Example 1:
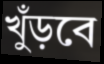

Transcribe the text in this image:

খুঁড়বে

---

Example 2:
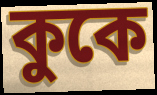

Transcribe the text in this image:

কুকে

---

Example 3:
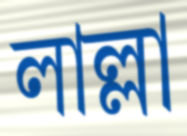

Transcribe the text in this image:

লাল্লা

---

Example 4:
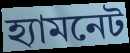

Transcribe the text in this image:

হ্যামনেট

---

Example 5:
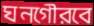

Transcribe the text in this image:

ঘনগৌরবে